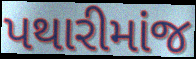
પથારીમાંજ